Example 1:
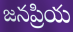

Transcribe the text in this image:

జనప్రియ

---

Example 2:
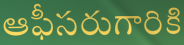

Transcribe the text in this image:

ఆఫీసరుగారికి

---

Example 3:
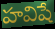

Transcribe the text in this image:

హవిషే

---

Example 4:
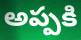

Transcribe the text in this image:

అప్పకి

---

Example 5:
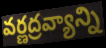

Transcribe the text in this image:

వర్ణద్రవ్యాన్ని